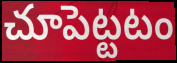
చూపెట్టటం